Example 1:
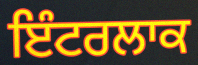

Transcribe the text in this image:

ਇੰਟਰਲਾਕ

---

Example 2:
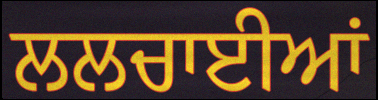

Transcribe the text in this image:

ਲਲਚਾਈਆਂ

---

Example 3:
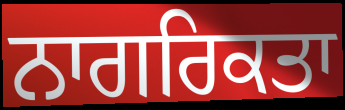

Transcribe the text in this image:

ਨਾਗਰਿਕਤਾ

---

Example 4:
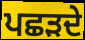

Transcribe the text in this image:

ਪਛੜਦੇ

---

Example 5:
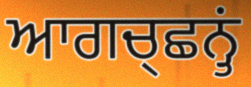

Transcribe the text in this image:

ਆਗਚ੍ਛਨ੍ਤਂ